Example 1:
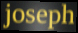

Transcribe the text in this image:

joseph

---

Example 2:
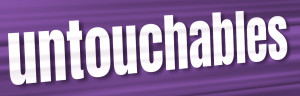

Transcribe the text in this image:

untouchables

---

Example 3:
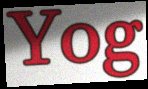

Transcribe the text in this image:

Yog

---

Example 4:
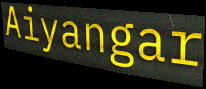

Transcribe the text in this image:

Aiyangar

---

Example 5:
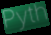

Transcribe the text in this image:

Pyth